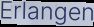
Erlangen